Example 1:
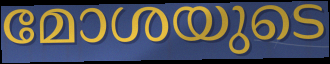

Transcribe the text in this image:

മോശയുടെ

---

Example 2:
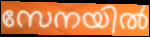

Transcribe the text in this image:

സേനയിൽ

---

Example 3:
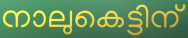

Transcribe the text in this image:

നാലുകെട്ടിന്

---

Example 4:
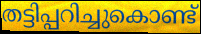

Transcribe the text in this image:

തട്ടിപ്പറിച്ചുകൊണ്ട്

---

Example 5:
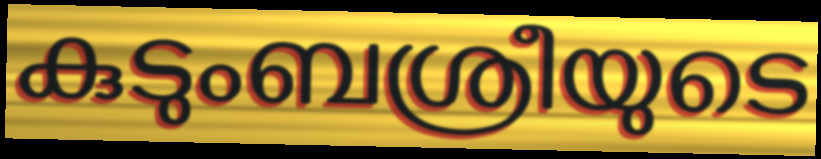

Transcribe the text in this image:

കുടുംബശ്രീയുടെ